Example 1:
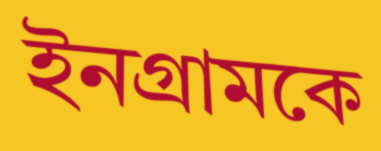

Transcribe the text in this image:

ইনগ্রামকে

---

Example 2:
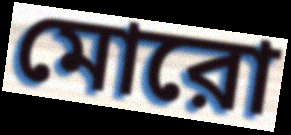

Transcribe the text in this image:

মোরো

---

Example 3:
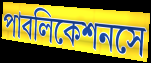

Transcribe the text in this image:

পাবলিকেশনসে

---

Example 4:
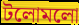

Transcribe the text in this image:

টলোমলো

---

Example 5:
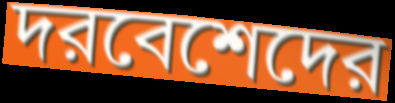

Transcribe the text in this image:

দরবেশেদের